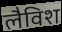
लैविश